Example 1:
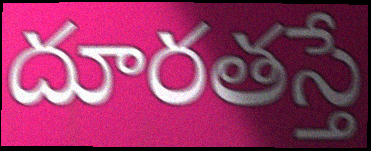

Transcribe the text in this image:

దూరతస్తే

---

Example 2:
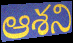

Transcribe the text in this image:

ఆశని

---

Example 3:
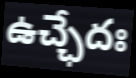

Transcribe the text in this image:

ఉచ్ఛేదః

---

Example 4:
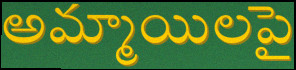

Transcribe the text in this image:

అమ్మాయిలపై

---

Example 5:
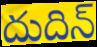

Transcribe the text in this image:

దుదిన్